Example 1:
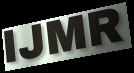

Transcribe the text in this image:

IJMR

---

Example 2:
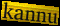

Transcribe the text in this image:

kannu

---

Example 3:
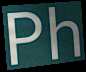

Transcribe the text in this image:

Ph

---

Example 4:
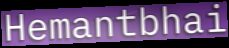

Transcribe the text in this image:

Hemantbhai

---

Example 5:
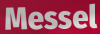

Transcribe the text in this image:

Messel